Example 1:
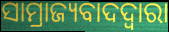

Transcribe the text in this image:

ସାମ୍ରାଜ୍ୟବାଦଦ୍ୱାରା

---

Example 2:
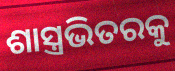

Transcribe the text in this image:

ଶାସ୍ତ୍ରଭିତରକୁ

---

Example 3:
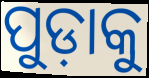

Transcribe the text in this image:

ପୁଡ଼ାକୁ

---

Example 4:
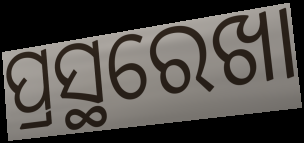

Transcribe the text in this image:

ପ୍ରସ୍ଥରେଖା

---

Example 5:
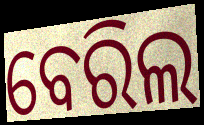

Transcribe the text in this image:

ବେରିଲ